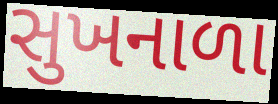
સુખનાળા